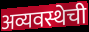
अव्यवस्थेची